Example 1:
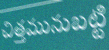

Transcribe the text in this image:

చిత్తమునుబట్టి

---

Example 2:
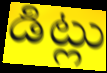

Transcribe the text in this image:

డిట్లు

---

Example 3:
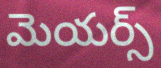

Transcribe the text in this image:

మెయర్స్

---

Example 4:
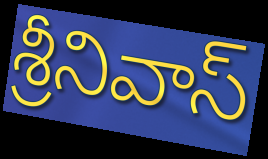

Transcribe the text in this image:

శ్రీనివాస్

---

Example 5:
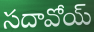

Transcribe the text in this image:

సదావోయ్